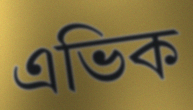
এভিক